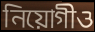
নিয়োগীও